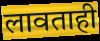
लावताही